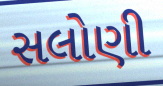
સલોણી